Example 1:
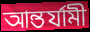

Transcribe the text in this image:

আন্তর্যামী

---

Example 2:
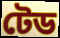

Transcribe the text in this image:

টেড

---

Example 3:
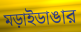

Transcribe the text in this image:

মড়াইডাঙার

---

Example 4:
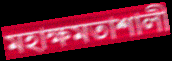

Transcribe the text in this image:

মহাক্ষমতাশালী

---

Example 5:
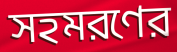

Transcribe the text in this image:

সহমরণের